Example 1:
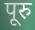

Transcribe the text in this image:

पूरु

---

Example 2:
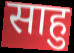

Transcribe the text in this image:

साहु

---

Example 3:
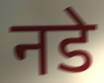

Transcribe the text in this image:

नडे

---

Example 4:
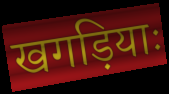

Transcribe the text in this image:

खगड़ियाः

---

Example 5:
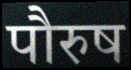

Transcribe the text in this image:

पौरुष